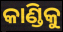
କାଣ୍ଡିକୁ